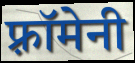
फ़्रॉमेनी